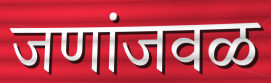
जणांजवळ